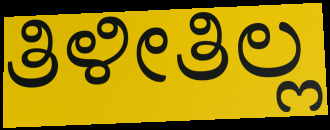
ತಿಳೀತಿಲ್ಲ